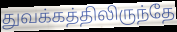
துவக்கத்திலிருந்தே